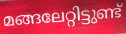
മങ്ങലേറ്റിട്ടുണ്ട്